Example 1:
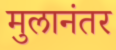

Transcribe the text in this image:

मुलानंतर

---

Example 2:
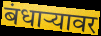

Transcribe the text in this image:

बंधाऱ्यावर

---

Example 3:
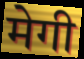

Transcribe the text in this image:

मेगी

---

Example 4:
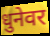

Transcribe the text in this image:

धुनेवर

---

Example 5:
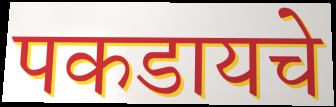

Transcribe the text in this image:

पकडायचे